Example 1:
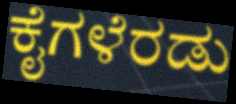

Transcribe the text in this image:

ಕೈಗಳೆರಡು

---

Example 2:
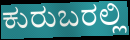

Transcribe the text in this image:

ಕುರುಬರಲ್ಲಿ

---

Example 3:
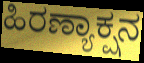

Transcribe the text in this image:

ಹಿರಣ್ಯಾಕ್ಷನ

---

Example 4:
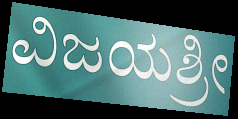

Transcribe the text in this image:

ವಿಜಯಶ್ರೀ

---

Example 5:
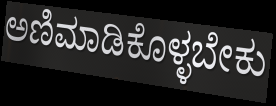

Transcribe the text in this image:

ಅಣಿಮಾಡಿಕೊಳ್ಳಬೇಕು